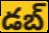
డబ్